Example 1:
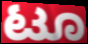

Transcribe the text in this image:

ಟೂ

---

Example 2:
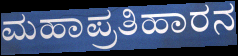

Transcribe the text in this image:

ಮಹಾಪ್ರತಿಹಾರನ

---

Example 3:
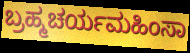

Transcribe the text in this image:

ಬ್ರಹ್ಮಚರ್ಯಮಹಿಂಸಾ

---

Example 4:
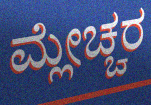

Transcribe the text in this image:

ಮ್ಲೇಚ್ಚರ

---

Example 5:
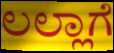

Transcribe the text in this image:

ಲಲ್ಲಾಗೆ